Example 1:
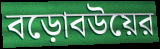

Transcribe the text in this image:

বড়োবউয়ের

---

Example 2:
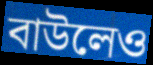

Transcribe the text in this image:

বাউলেও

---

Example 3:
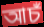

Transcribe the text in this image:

আচঁ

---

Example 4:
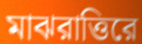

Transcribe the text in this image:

মাঝরাত্তিরে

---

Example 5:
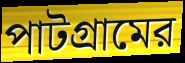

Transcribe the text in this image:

পাটগ্রামের